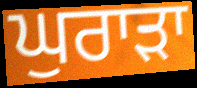
ਘੁਰਾੜਾ